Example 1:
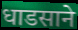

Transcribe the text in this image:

धाडसाने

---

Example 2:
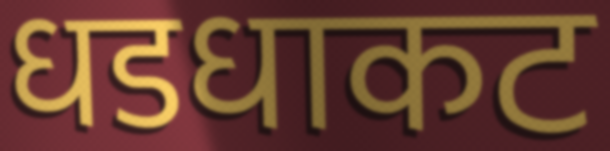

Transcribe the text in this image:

धडधाकट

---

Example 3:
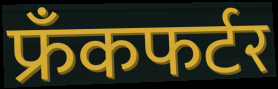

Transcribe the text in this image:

फ्रँकफर्टर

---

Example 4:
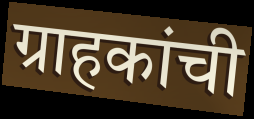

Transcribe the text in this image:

ग्राहकांची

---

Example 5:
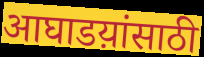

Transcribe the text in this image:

आघाडय़ांसाठी